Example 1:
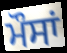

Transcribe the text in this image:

ਮੌਸਾਂ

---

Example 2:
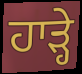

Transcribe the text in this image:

ਹਾੜ੍ਹੇ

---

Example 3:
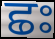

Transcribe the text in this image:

ਛਃ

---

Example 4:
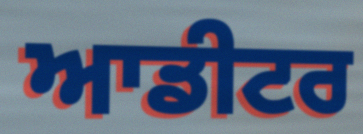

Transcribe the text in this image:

ਆਡੀਟਰ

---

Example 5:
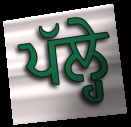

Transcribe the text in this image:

ਪੱਲ੍ਹੇ